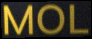
MOL